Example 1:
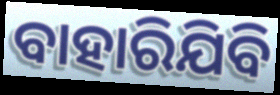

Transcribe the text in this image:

ବାହାରିଯିବି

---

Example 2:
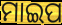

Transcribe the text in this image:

ମାଇପ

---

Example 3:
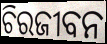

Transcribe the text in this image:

ଚିରଜୀବନ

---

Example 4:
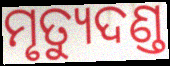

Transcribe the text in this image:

ମୃତ୍ୟୁଦଣ୍ଡ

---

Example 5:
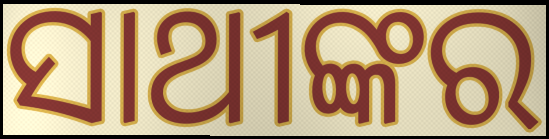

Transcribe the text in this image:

ସାଥୀଙ୍କର